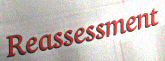
Reassessment